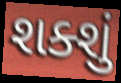
શક્શું